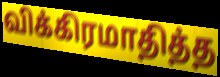
விக்கிரமாதித்த